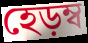
হেড়ম্ব